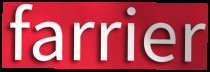
farrier